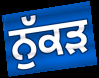
ਨੁੱਕਡ਼